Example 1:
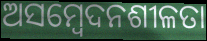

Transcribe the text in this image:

ଅସମ୍ବେଦନଶୀଳତା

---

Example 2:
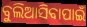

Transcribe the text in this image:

ବୁଲିଆସିବାପାଇଁ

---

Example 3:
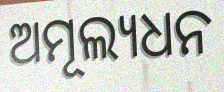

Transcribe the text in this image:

ଅମୂଲ୍ୟଧନ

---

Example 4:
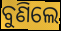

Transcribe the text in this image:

ବୁଣିଲେ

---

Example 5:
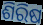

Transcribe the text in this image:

ଶିରିଷ